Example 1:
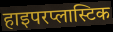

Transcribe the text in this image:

हाइपरप्लास्टिक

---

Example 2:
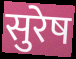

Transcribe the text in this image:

सुरेष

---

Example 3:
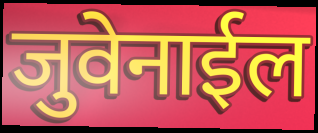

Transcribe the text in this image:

जुवेनाईल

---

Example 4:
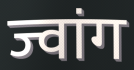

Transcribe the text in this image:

ज्वांग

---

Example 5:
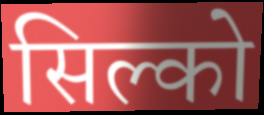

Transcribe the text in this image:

सिल्को